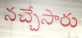
నచ్చేసారు